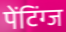
पेंटिंग्ज